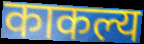
काकल्य